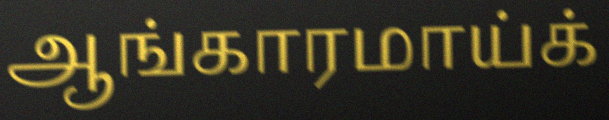
ஆங்காரமாய்க்